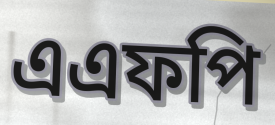
এএফপি